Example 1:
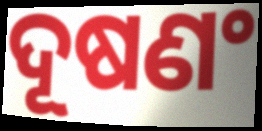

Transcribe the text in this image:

ଦୂଷଣଂ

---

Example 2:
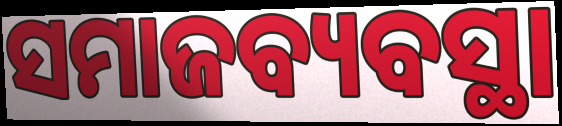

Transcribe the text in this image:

ସମାଜବ୍ୟବସ୍ଥା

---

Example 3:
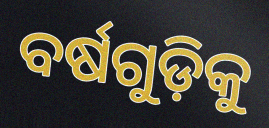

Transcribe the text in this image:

ବର୍ଷଗୁଡ଼ିକୁ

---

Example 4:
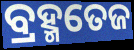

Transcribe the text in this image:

ବ୍ରହ୍ମତେଜ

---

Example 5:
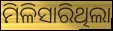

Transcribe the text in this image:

ମିଳିସାରିଥିଲା